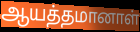
ஆயத்தமானாள்